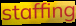
staffing